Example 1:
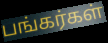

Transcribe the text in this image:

பங்கர்கள்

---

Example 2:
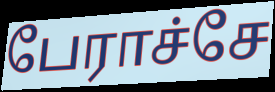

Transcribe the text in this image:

பேராச்சே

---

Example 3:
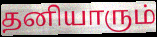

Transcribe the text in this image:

தனியாரும்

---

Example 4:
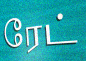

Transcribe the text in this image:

ரேட்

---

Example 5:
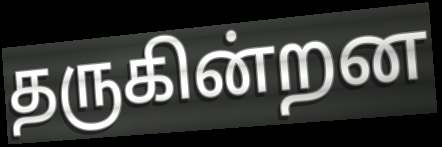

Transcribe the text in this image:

தருகின்றன